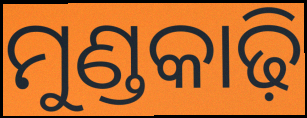
ମୁଣ୍ଡକାଢ଼ି